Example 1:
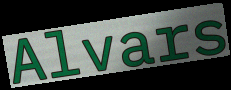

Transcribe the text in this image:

Alvars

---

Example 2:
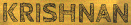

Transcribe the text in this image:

KRISHNAN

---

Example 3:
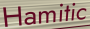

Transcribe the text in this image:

Hamitic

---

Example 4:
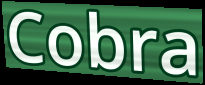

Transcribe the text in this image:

Cobra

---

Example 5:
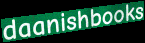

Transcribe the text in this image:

daanishbooks